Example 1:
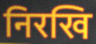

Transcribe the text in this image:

निरखि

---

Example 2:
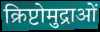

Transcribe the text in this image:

क्रिप्टोमुद्राओं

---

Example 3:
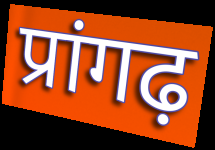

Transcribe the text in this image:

प्रांगढ़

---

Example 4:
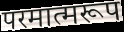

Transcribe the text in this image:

परमात्मरूप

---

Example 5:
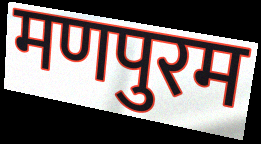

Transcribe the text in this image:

मणपुरम